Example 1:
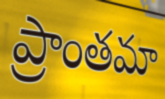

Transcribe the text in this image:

ప్రాంతమా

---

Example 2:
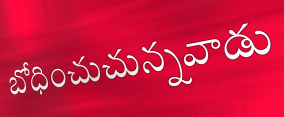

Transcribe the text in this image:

బోధించుచున్నవాడు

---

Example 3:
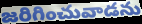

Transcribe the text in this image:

జరిగించువాడను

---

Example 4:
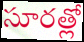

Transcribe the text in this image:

సూరత్లో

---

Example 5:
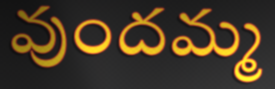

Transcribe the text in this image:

వుందమ్మ